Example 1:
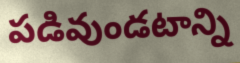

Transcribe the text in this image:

పడివుండటాన్ని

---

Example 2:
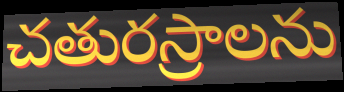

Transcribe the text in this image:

చతురస్రాలను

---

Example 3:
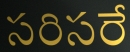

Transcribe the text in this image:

సరిసరే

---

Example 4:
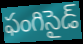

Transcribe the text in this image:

ఫంగిసైడ్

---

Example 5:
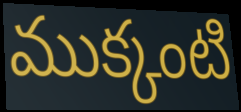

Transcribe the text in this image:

ముక్కంటి